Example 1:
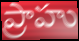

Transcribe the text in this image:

ప్రాహు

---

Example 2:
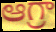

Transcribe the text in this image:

ఆగ్రా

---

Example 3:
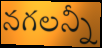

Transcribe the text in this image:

నగలన్నీ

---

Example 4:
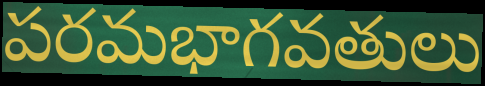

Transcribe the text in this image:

పరమభాగవతులు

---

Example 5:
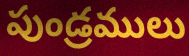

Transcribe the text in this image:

పుండ్రములు